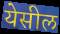
येसील